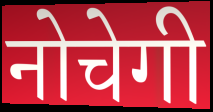
नोचेगी